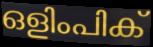
ഒളിംപിക്